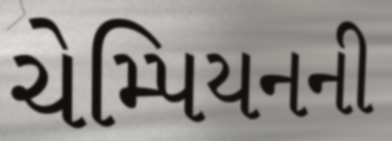
ચેમ્પિયનની